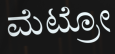
ಮೆಟ್ರೋ